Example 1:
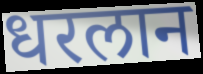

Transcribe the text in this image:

धरलान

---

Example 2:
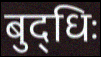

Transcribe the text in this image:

बुद्धिः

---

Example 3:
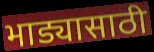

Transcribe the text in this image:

भाड्यासाठी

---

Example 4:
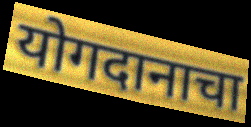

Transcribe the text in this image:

योगदानाचा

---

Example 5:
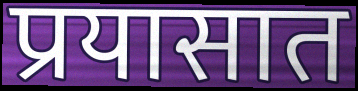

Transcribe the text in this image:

प्रयासात